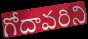
గోదావరిని